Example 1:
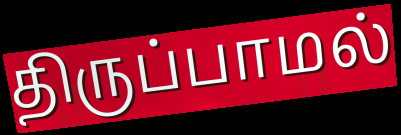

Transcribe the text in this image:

திருப்பாமல்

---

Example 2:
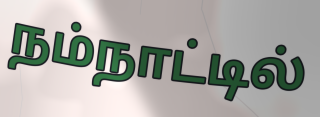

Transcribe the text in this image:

நம்நாட்டில்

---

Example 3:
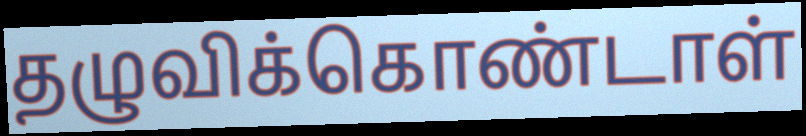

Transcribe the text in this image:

தழுவிக்கொண்டாள்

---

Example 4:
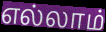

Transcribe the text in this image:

எல்லாம்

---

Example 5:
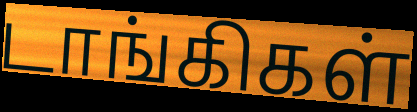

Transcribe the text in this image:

டாங்கிகள்